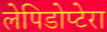
लेपिडोप्टेरा